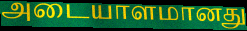
அடையாளமானது